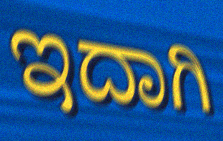
ಇದಾಗಿ